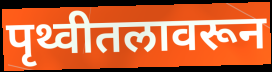
पृथ्वीतलावरून